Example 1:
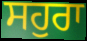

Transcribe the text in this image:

ਸਹੁਰਾ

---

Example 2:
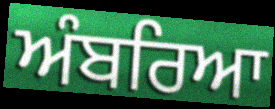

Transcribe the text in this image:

ਅੰਬਰਿਆ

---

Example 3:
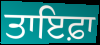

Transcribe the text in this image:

ਤਾਇਫ਼ਾ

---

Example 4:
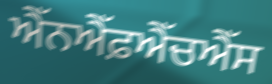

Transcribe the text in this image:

ਐੱਨਐੱਫ਼ਐੱਚਐੱਸ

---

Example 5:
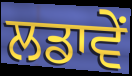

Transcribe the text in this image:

ਲਡਾਵੇਂ